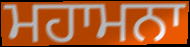
ਮਹਾਮਨਾ